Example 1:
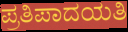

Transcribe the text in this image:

ಪ್ರತಿಪಾದಯತಿ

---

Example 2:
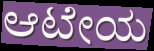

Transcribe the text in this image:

ಆಟೇಯ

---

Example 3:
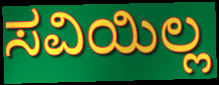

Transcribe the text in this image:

ಸವಿಯಿಲ್ಲ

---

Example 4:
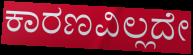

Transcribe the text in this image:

ಕಾರಣವಿಲ್ಲದೇ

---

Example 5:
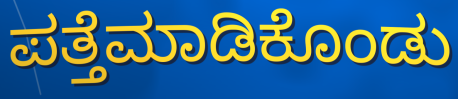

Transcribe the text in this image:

ಪತ್ತೆಮಾಡಿಕೊಂಡು